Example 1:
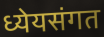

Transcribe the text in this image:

ध्येयसंगत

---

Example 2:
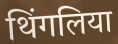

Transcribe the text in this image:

थिंगलिया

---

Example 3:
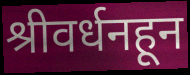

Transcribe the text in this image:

श्रीवर्धनहून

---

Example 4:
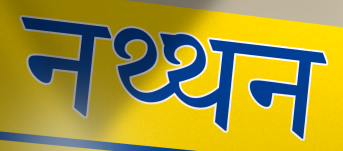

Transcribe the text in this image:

नथ्थन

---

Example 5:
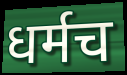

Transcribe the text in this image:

धर्मच